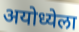
अयोध्येला